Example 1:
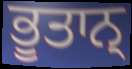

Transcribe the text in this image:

ਭੂਤਾਨ੍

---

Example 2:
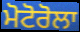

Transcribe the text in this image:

ਮੋਟੋਰੋਲਾ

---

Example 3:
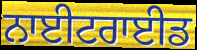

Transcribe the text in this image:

ਨਾਈਟਰਾਈਡ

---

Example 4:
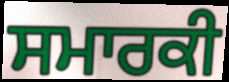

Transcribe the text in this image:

ਸਮਾਰਕੀ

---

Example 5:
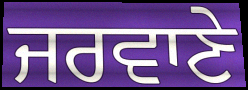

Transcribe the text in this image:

ਜਰਵਾਣੇ